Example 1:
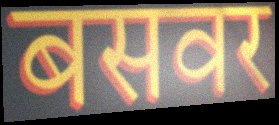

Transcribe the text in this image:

बसवर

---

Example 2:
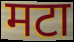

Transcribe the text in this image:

मटा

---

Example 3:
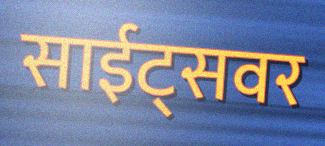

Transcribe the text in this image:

साईट्सवर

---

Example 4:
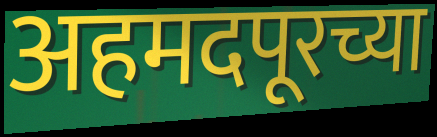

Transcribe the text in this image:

अहमदपूरच्या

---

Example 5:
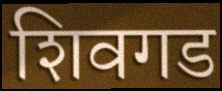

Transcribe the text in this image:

शिवगड